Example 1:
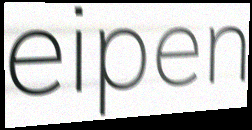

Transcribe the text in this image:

eipen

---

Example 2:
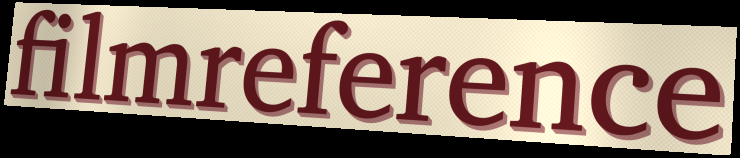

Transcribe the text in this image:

filmreference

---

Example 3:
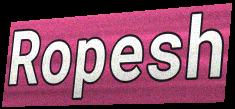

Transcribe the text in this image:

Ropesh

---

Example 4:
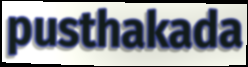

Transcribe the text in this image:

pusthakada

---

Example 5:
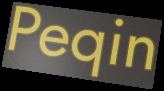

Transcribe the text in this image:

Peqin